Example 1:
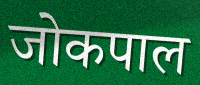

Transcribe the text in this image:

जोकपाल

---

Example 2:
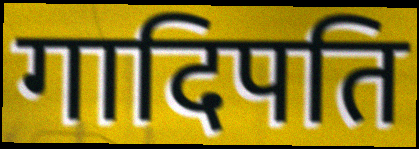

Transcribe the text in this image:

गादिपति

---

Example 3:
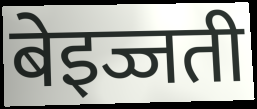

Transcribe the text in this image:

बेइज्जती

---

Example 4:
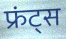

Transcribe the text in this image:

फ्रंट्स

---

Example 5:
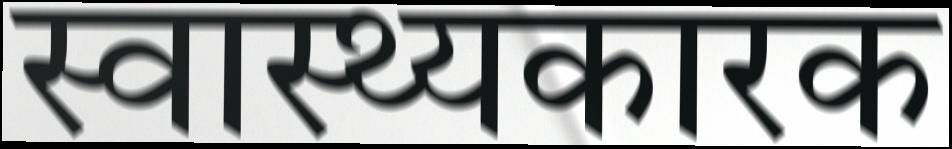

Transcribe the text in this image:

स्वास्थ्यकारक